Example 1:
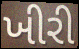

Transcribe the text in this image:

ખીરી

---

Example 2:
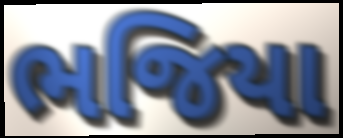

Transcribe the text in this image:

ભજિયા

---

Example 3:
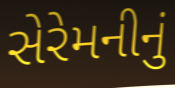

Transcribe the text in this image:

સેરેમનીનું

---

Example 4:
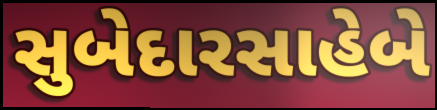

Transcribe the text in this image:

સુબેદારસાહેબે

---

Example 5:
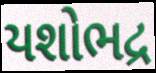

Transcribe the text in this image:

યશોભદ્ર